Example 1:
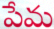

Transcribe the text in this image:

పేమ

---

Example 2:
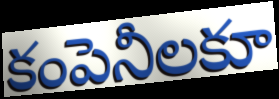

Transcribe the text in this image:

కంపెనీలకూ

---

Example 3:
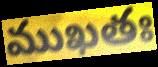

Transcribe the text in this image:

ముఖతః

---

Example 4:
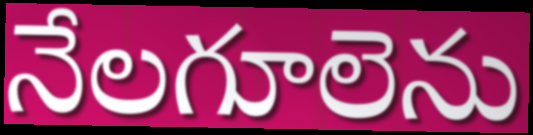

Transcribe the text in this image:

నేలగూలెను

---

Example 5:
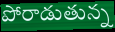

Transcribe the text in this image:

పోరాడుతున్న